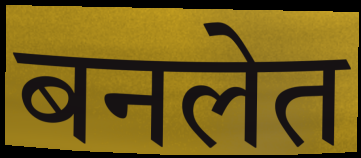
बनलेत